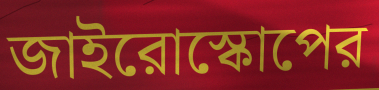
জাইরোস্কোপের